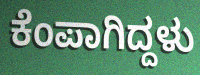
ಕೆಂಪಾಗಿದ್ದಳು